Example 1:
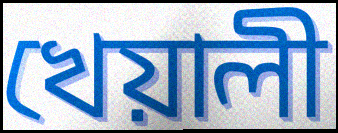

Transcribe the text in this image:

খেয়ালী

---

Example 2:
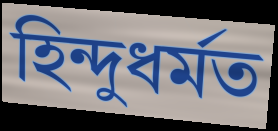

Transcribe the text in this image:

হিন্দুধৰ্মত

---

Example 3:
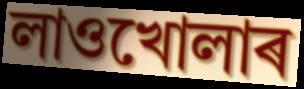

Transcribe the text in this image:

লাওখোলাৰ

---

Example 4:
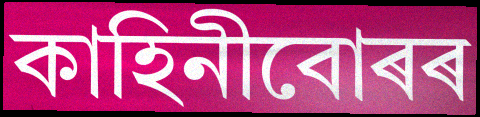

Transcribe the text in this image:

কাহিনীবোৰৰ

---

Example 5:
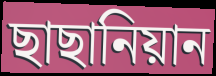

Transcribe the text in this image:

ছাছানিয়ান